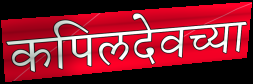
कपिलदेवच्या